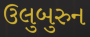
ઉલુબુરુન